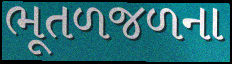
ભૂતળજળના